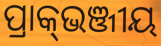
ପ୍ରାକ୍‌ଭଞ୍ଜୀୟ